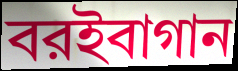
বরইবাগান